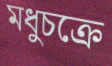
মধুচক্রে